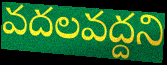
వదలవద్దని